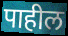
पाहील